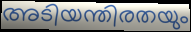
അടിയന്തിരതയും